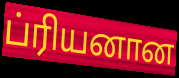
ப்ரியனான